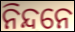
ନିନ୍ଦନେ